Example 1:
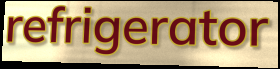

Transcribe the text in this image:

refrigerator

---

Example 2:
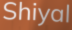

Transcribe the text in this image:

Shiyal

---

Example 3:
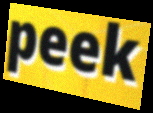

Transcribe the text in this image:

peek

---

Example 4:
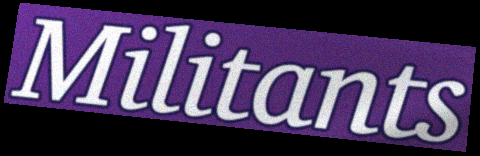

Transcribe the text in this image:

Militants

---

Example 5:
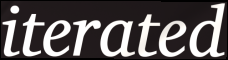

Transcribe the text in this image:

iterated